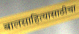
बालसाहित्यासाठीचा